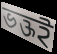
ভক্তই